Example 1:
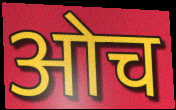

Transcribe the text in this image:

ओच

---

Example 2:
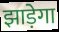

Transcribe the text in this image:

झाड़ेगा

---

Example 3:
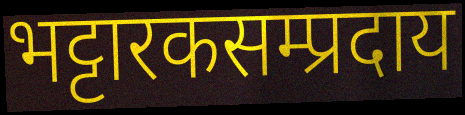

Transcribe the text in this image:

भट्टारकसम्प्रदाय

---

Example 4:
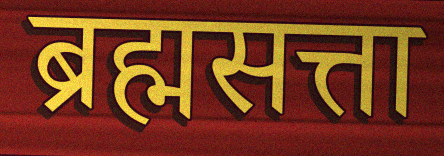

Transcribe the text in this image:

ब्रह्मसत्ता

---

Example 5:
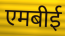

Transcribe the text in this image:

एमबीई